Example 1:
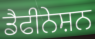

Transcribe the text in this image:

ਡੈਫੀਨੇਸ਼ਨ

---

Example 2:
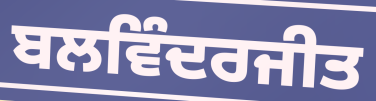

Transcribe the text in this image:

ਬਲਵਿੰਦਰਜੀਤ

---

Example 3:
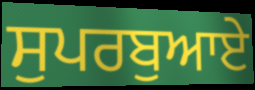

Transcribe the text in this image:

ਸੁਪਰਬੁਆਏ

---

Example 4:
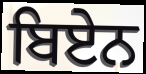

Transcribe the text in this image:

ਬਿਏਨ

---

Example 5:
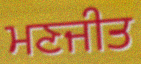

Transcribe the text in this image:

ਮਣਜੀਤ